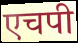
एचपी